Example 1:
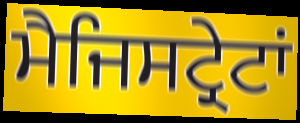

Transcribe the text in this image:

ਮੈਜਿਸਟ੍ਰੇਟਾਂ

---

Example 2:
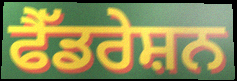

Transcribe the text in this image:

ਫੈੱਡਰੇਸ਼ਨ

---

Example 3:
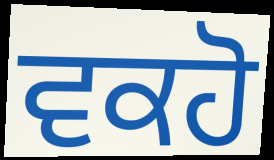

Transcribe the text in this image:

ਵਕਹੋ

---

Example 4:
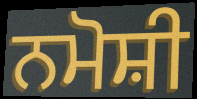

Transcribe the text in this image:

ਨਮੋਸ਼ੀ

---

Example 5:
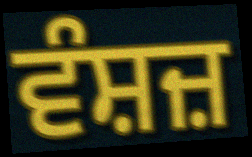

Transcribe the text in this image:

ਵੰਸ਼ਜ਼